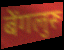
बेंगलुरू